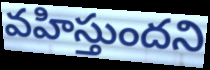
వహిస్తుందని